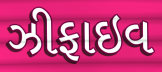
ઝીફાઇવ